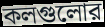
কলগুলোর